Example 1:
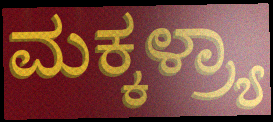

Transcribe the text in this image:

ಮಕ್ಕಳ್ರ್ಯಾ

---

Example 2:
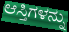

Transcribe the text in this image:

ಆಸ್ತಿಗಳನ್ನು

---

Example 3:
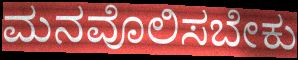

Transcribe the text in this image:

ಮನವೊಲಿಸಬೇಕು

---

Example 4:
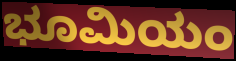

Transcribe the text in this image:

ಭೂಮಿಯಂ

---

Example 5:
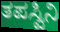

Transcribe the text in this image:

ತಪಸ್ವಿನಿ